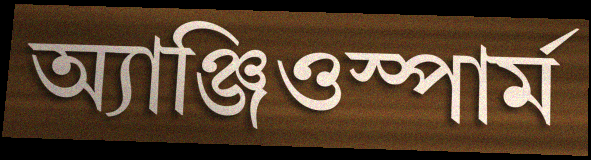
অ্যাঞ্জিওস্পার্ম